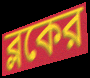
ব্লকের